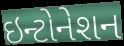
ઇન્ટોનેશન